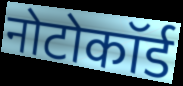
नोटोकॉर्ड